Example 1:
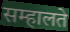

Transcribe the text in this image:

सम्हालते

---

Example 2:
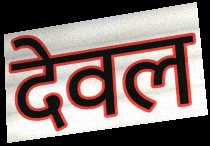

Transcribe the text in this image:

देवल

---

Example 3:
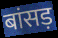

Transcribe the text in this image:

बांसड़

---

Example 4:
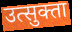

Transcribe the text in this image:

उत्सुक्ता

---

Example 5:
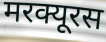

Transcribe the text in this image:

मरक्यूरस